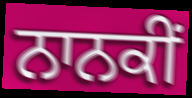
ਨਾਨਕੀਂ